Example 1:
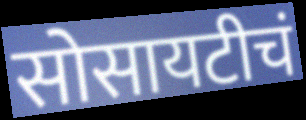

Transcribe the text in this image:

सोसायटीचं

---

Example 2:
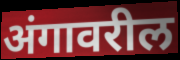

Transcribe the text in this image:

अंगावरील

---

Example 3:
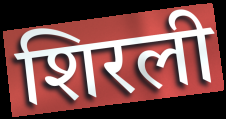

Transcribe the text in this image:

शिरली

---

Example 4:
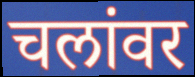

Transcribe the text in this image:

चलांवर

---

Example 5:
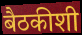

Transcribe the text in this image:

बैठकीशी